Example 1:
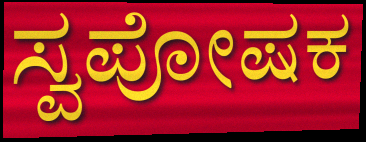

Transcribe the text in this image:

ಸ್ವಪೋಷಕ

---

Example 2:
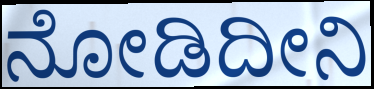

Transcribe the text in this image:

ನೋಡಿದೀನಿ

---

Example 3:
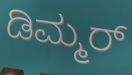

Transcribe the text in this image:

ಡಿಮ್ಮರ್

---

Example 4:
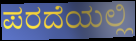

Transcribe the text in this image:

ಪರದೆಯಲ್ಲಿ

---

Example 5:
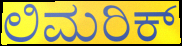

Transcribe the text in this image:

ಲಿಮರಿಕ್